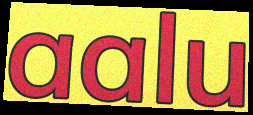
aalu